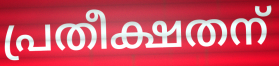
പ്രതീക്ഷതന്